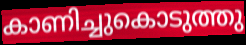
കാണിച്ചുകൊടുത്തു